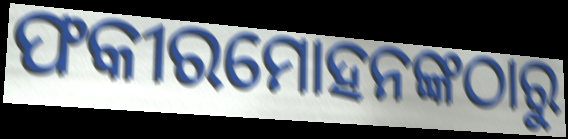
ଫକୀରମୋହନଙ୍କଠାରୁ